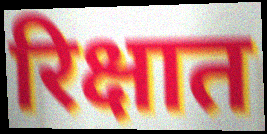
रिक्षात